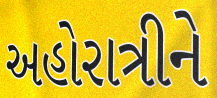
અહોરાત્રીને